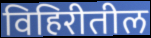
विहिरीतील